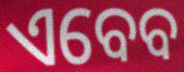
ଏବେବ